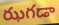
ఝగడా